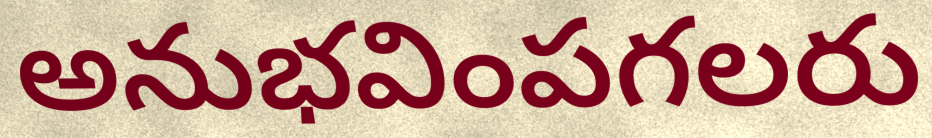
అనుభవింపగలరు